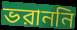
ভরাননি